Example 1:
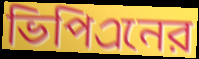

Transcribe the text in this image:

ভিপিএনের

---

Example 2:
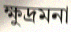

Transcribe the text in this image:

ক্ষুদ্রমনা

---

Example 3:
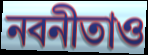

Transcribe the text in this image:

নবনীতাও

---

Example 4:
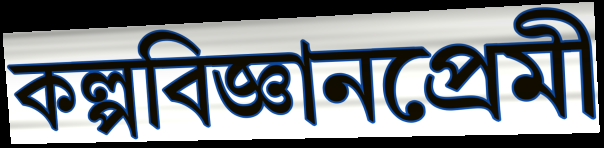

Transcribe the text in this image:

কল্পবিজ্ঞানপ্রেমী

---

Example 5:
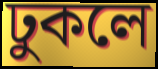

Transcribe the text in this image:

ঢুকলে